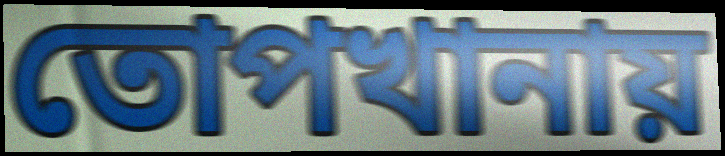
তোপখানায়